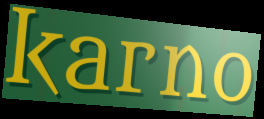
karno